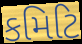
કમિટિ